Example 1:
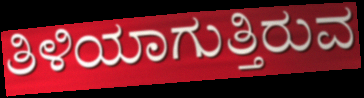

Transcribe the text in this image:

ತಿಳಿಯಾಗುತ್ತಿರುವ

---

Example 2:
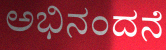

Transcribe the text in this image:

ಅಭಿನಂದನೆ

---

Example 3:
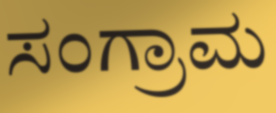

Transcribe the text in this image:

ಸಂಗ್ರಾಮ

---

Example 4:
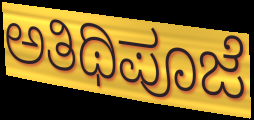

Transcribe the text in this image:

ಅತಿಥಿಪೂಜೆ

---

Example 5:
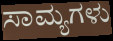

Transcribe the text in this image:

ಸಾಮ್ಯಗಳು